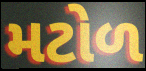
મટોળ